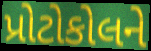
પ્રોટોકોલને